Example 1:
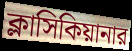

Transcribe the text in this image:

ক্লাসিকিয়ানার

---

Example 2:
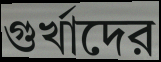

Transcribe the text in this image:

গুর্খাদের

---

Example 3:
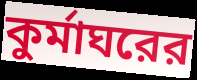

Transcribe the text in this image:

কুর্মাঘরের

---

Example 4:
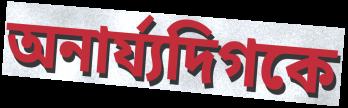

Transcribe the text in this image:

অনার্য্যদিগকে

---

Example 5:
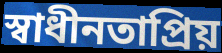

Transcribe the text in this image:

স্বাধীনতাপ্রিয়